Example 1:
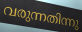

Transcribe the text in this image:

വരുന്നതിന്നു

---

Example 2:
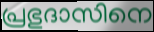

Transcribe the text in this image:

പ്രഭുദാസിനെ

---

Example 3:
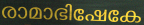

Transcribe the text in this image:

രാമാഭിഷേകേ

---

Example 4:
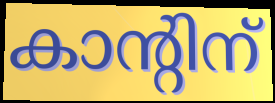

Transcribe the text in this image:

കാന്റിന്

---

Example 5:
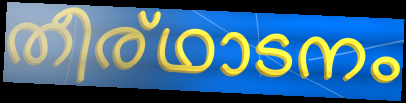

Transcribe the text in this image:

തീര്ഥാടനം